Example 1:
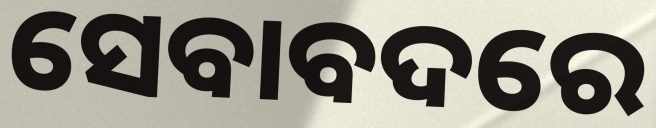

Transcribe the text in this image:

ସେବାବଦରେ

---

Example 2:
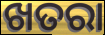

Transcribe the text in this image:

ଖତରା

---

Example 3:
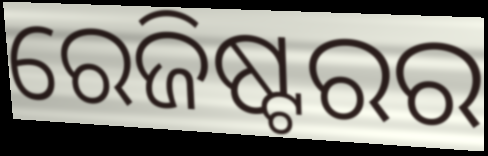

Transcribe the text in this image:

ରେଜିଷ୍ଟରର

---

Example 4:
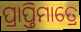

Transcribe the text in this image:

ପ୍ରାପ୍ତିମାତ୍ରେ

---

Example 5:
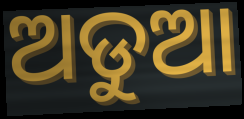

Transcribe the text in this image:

ଅଡୁଆ